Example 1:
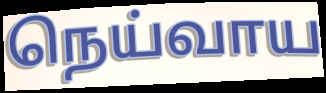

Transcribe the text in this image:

நெய்வாய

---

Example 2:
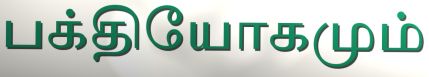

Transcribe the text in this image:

பக்தியோகமும்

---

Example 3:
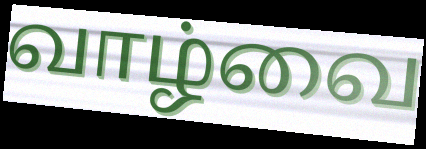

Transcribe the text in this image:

வாழ்வை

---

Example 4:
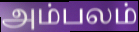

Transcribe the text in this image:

அம்பலம்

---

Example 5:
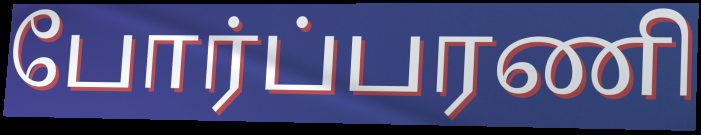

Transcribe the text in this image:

போர்ப்பரணி